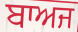
ਬਾਅਜ